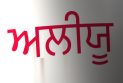
ਅਲੀਯੂ